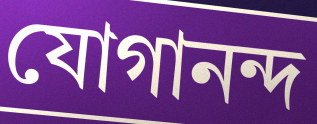
যোগানন্দ